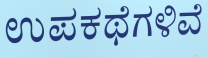
ಉಪಕಥೆಗಳಿವೆ